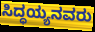
ಸಿದ್ಧಯ್ಯನವರು